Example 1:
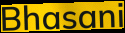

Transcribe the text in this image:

Bhasani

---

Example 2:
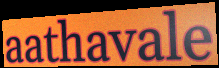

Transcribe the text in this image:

aathavale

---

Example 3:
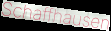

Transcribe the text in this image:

Schaffhausen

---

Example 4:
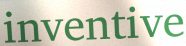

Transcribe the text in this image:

inventive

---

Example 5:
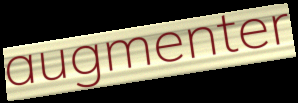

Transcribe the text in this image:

augmenter